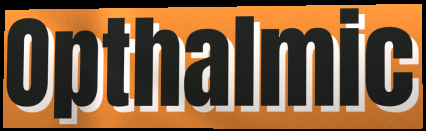
Opthalmic